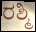
ರಶ್ಮಿ